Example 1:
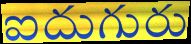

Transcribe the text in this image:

ఐదుగురు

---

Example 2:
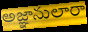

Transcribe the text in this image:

అజ్ఞానులారా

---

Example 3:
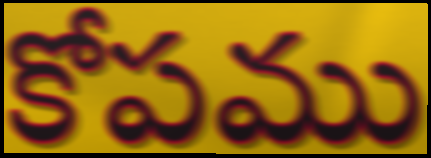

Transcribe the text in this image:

కోపము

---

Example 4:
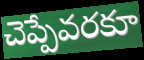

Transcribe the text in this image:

చెప్పేవరకూ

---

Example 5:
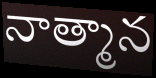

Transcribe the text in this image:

నాత్మాన